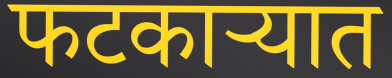
फटकाऱ्यात